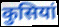
कुसियां